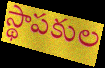
స్థాపకుల